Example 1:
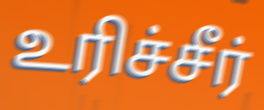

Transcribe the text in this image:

உரிச்சீர்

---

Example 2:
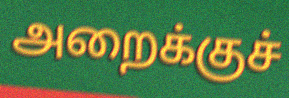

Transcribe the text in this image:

அறைக்குச்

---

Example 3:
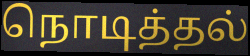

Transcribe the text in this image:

நொடித்தல்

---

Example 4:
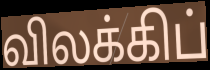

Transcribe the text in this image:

விலக்கிப்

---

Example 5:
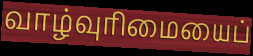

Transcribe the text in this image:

வாழ்வுரிமையைப்